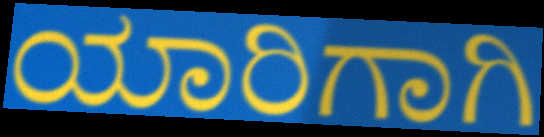
ಯಾರಿಗಾಗಿ